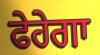
ਫੇਹੇਗਾ